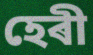
হেৰী